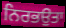
ਨਿਰਭਉਤਾ